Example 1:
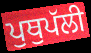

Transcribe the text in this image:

ਪੁਥੁਪੱਲੀ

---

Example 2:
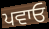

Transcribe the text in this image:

ਪਵਾਓ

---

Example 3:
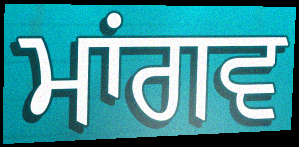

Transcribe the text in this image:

ਮਾਂਗਵ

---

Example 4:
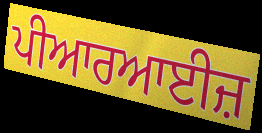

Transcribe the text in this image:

ਪੀਆਰਆਈਜ਼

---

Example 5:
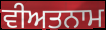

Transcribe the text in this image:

ਵੀਅਤਨਾਮ